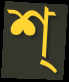
শ্